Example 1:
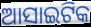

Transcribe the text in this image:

ଆସାଇଟିକ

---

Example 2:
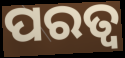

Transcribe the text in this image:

ପରତ୍ୱ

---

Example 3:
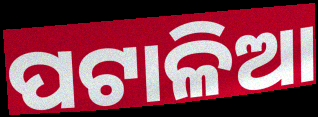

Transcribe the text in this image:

ପଟାଳିଆ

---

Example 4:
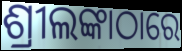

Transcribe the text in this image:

ଶ୍ରୀଲଙ୍କାଠାରେ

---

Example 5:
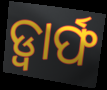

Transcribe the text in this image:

ଡ୍ୱାର୍ଫ